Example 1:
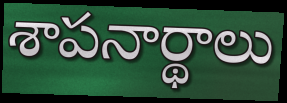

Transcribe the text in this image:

శాపనార్థాలు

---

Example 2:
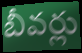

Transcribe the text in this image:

బీవర్లు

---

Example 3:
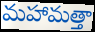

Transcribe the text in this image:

మహామత్తా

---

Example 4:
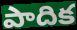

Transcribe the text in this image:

పాదిక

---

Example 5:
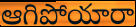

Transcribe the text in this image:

ఆగిపోయారా